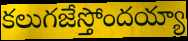
కలుగజేస్తోందయ్యా